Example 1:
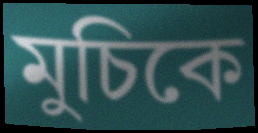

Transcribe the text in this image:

মুচিকে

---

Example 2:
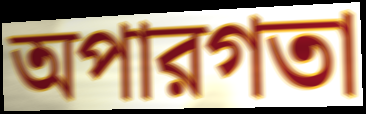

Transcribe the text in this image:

অপারগতা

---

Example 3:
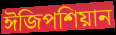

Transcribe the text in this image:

ঈজিপশিয়ান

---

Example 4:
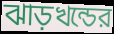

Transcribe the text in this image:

ঝাড়খন্ডের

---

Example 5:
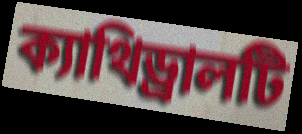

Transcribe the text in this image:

ক্যাথিড্রালটি